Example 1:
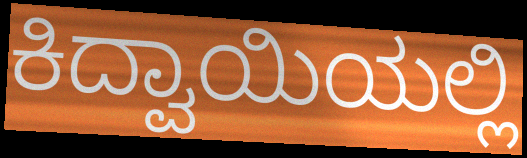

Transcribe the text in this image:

ಕಿದ್ವಾಯಿಯಲ್ಲಿ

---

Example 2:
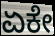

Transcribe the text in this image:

ಏಕೇ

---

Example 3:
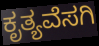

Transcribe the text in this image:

ಕೃತ್ಯವೆಸಗಿ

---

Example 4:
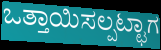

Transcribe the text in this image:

ಒತ್ತಾಯಿಸಲ್ಪಟ್ಟಾಗ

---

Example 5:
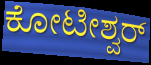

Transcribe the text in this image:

ಕೋಟೀಶ್ವರ್